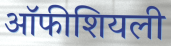
ऑफीशियली